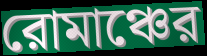
রোমাঞ্চের